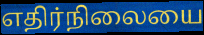
எதிர்நிலையை